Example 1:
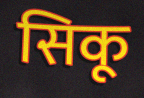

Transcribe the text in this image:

सिकू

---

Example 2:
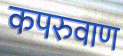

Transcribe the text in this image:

कपरुवाण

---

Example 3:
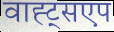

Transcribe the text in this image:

वाह्ट्सएप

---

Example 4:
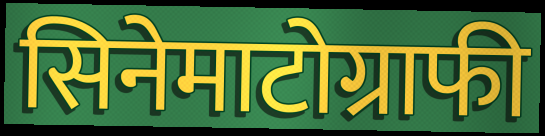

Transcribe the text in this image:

सिनेमाटोग्राफी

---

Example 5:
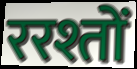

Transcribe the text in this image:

ररश्तों